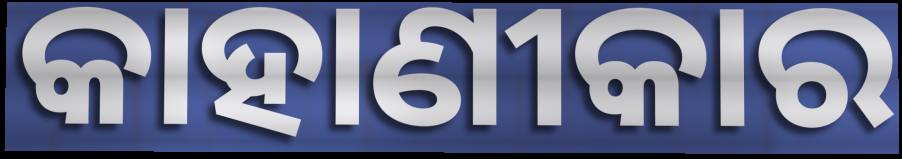
କାହାଣୀକାର